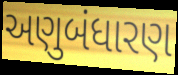
અણુબંધારણ